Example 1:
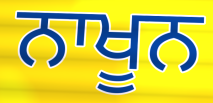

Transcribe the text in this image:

ਨਾਖੂਨ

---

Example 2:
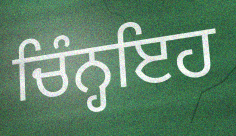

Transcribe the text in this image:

ਚਿੰਨ੍ਹਇਹ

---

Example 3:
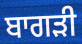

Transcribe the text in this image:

ਬਾਗੜੀ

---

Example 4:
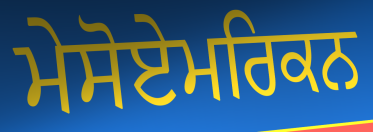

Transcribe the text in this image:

ਮੇਸੋਏਮਰਿਕਨ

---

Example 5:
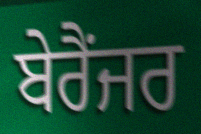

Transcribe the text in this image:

ਬੇਰੈਂਜਰ